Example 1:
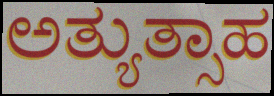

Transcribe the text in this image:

ಅತ್ಯುತ್ಸಾಹ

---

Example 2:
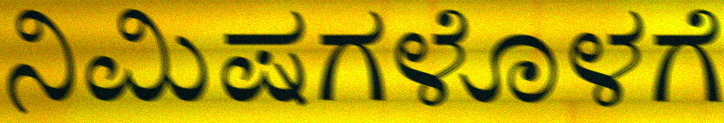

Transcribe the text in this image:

ನಿಮಿಷಗಳೊಳಗೆ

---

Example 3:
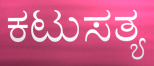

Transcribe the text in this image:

ಕಟುಸತ್ಯ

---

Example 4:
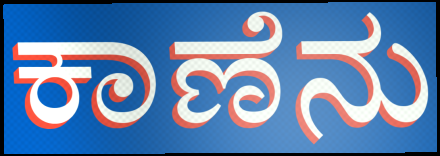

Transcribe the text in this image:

ಕಾಣೆನು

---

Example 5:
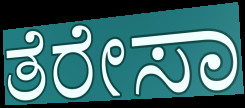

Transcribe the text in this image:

ತೆರೇಸಾ